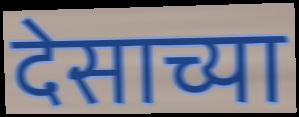
देसाच्या